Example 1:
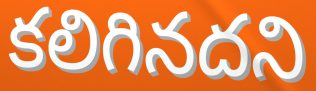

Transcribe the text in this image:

కలిగినదని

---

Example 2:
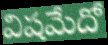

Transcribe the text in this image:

విషమేదో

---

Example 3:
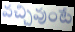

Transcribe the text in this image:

వచ్చివుంటే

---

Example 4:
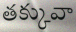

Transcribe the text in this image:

తక్కువా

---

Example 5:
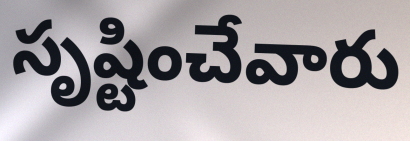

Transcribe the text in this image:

సృష్టించేవారు